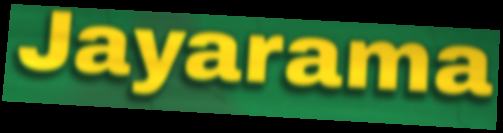
Jayarama